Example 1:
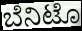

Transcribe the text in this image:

ಬೆನಿಟೊ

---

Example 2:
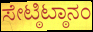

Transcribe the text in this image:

ಸೇಟ್ಠಿಟ್ಠಾನಂ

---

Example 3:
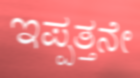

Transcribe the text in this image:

ಇಪ್ಪತ್ತನೇ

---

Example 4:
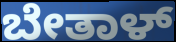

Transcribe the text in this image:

ಬೇತಾಳ್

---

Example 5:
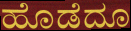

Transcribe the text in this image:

ಹೊಡೆದೂ